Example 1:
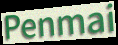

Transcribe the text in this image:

Penmai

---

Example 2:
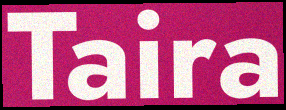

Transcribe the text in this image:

Taira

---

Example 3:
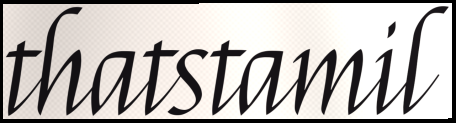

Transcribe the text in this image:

thatstamil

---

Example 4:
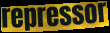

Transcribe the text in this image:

repressor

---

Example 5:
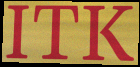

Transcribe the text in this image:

ITK